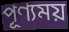
পূণ্যময়